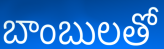
బాంబులతో